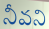
నీవని